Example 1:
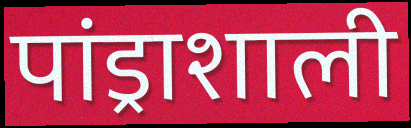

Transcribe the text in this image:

पांड्राशाली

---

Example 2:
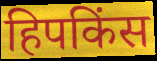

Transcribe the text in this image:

हिपकिंस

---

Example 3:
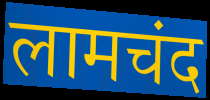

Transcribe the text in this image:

लामचंद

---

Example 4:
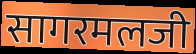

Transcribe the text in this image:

सागरमलजी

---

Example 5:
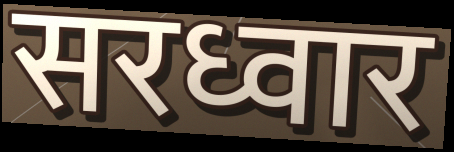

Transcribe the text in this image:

सरध्वार